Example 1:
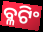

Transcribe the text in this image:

ବ୍ଳଟିଂ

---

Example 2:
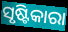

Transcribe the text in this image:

ସୃଷ୍ଟିକାରା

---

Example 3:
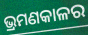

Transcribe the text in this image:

ଭ୍ରମଣକାଳର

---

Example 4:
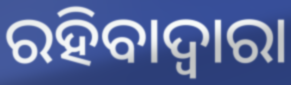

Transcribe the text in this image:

ରହିବାଦ୍ଵାରା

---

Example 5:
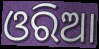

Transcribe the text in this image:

ଓରିଆ